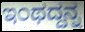
ಇಂಥದ್ದನ್ನ